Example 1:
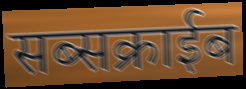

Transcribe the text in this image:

सब्सक्राईब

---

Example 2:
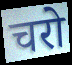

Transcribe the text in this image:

चरो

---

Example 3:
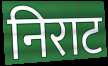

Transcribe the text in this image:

निराट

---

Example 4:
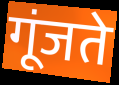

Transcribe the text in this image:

गूंजते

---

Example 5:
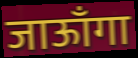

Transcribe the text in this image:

जाऊाँगा